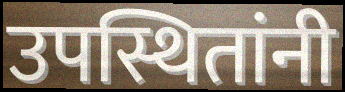
उपस्थितांनी